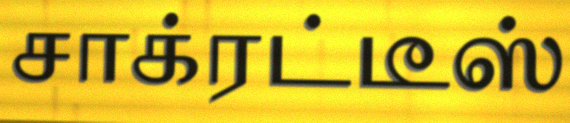
சாக்ரட்டீஸ்